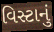
વિસ્ટાનું